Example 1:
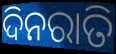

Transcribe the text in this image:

ଦିନରାତି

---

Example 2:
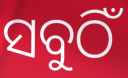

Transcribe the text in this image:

ସବୁଠିଁ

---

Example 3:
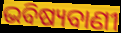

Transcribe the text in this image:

ଭବିଷ୍ୟବାଣୀ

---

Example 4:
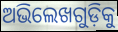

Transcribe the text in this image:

ଅଭିଲେଖଗୁଡ଼ିକୁ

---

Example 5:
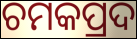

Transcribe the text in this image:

ଚମକପ୍ରଦ